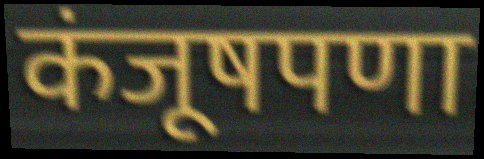
कंजूषपणा